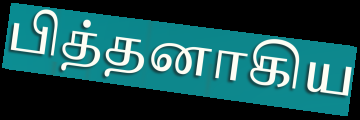
பித்தனாகிய